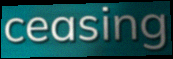
ceasing